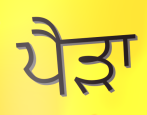
ਪੈੜਾ